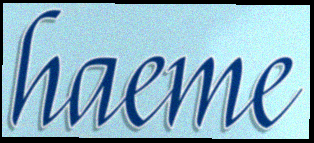
haeme